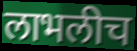
लाभलीच